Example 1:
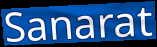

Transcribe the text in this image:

Sanarat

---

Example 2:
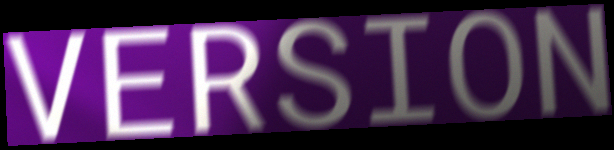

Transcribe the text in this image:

VERSION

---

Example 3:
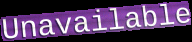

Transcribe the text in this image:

Unavailable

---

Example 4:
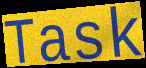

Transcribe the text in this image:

Task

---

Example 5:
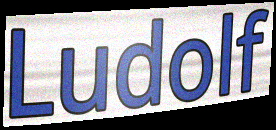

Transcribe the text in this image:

Ludolf